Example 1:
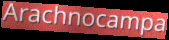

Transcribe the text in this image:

Arachnocampa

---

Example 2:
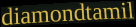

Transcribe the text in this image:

diamondtamil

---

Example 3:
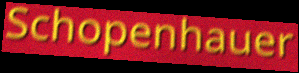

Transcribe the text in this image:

Schopenhauer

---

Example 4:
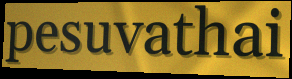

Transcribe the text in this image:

pesuvathai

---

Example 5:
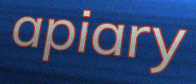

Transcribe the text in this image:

apiary